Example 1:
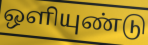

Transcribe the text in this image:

ஒளியுண்டு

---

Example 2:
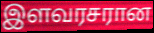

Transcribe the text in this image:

இளவரசரான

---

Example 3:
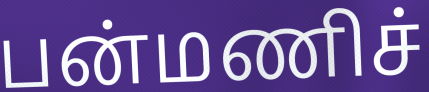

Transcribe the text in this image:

பன்மணிச்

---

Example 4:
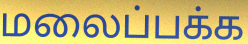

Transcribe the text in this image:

மலைப்பக்க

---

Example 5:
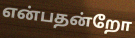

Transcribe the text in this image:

என்பதன்றோ